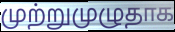
முற்றுமுழுதாக